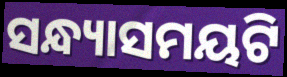
ସନ୍ଧ୍ୟାସମୟଟି